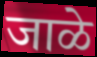
जाळे